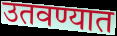
उतवण्यात